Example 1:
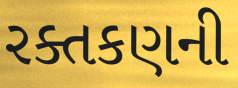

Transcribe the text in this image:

રક્તકણની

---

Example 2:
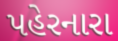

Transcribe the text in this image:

પહેરનારા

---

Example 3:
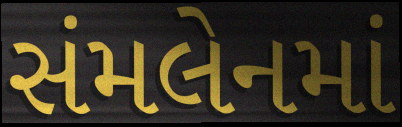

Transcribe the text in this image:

સંમલેનમાં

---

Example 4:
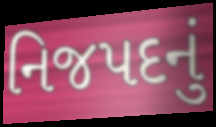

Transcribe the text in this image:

નિજપદનું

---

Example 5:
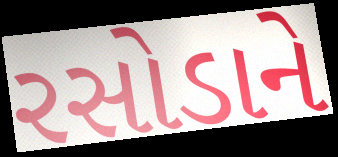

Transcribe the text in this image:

રસોડાને